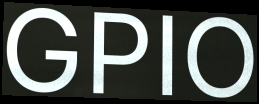
GPIO